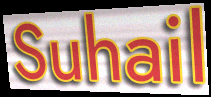
Suhail